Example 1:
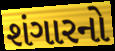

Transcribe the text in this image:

શંગારનો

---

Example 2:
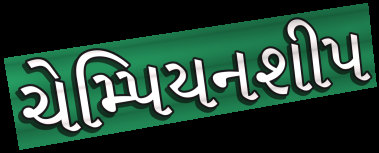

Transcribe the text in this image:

ચેમ્પિયનશીપ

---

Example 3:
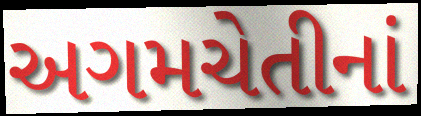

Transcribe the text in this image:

અગમચેતીનાં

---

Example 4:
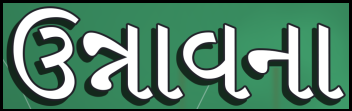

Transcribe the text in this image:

ઉન્નાવના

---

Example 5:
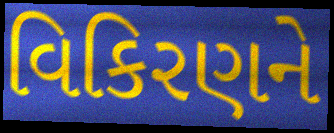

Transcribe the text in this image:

વિકિરણને